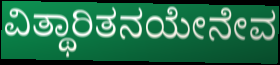
ವಿತ್ಥಾರಿತನಯೇನೇವ